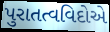
પુરાતત્વવિદોએ